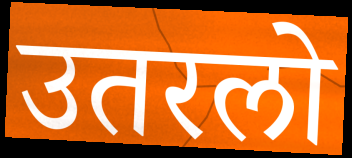
उतरलो